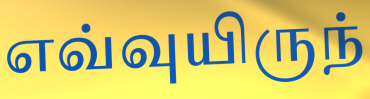
எவ்வுயிருந்